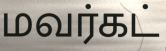
மவர்கட்